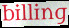
billing